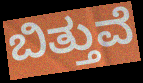
ಬಿತ್ತುವೆ